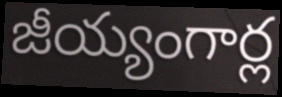
జీయ్యంగార్ల